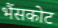
भैंसकोट